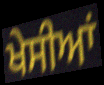
ਖੇਸੀਆਂ